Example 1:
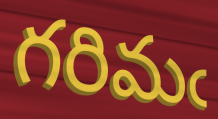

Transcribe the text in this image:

గరిమఁ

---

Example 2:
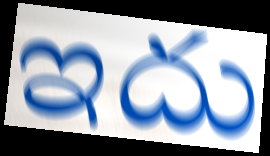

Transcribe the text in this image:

ఇదు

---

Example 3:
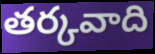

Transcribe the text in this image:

తర్కవాది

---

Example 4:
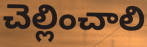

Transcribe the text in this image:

చెల్లించాలి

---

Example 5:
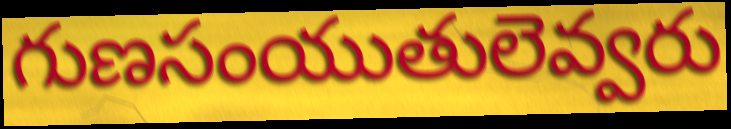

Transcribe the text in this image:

గుణసంయుతులెవ్వరు